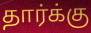
தார்க்கு